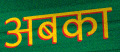
अबका